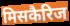
मिसकैरिज